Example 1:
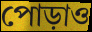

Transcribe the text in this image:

পোড়াও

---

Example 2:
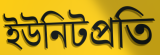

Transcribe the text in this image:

ইউনিটপ্রতি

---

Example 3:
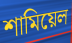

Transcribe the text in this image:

শামিয়েল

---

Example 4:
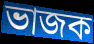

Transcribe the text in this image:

ভাজক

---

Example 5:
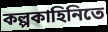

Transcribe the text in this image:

কল্পকাহিনিতে